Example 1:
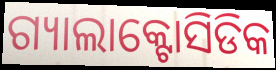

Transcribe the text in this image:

ଗ୍ୟାଲାକ୍ଟୋସିଡିକ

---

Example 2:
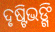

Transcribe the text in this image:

ଦୃଷ୍ଟିଭଙ୍ଗି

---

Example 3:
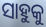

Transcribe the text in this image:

ସାହୁକୁ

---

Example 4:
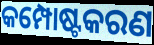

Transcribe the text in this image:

କମ୍ପୋଷ୍ଟକରଣ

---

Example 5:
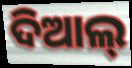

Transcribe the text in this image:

ଦିଆଲ୍